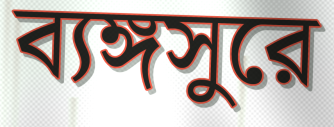
ব্যঙ্গসুরে